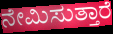
ನೇಮಿಸುತ್ತಾರೆ